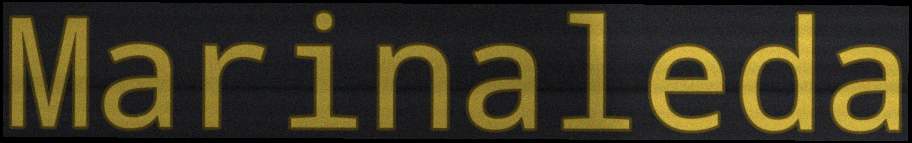
Marinaleda